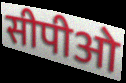
सीपीओ